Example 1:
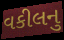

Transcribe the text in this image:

વકીલનુ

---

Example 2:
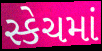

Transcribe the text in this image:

સ્કેચમાં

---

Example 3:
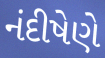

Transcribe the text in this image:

નંદીષેણે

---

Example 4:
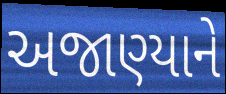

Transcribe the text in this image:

અજાણ્યાને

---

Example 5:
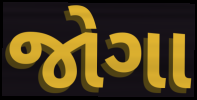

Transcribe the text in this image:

જોગા